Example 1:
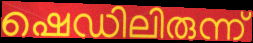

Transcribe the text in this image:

ഷെഡിലിരുന്ന്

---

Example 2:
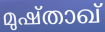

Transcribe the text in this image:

മുഷ്താഖ്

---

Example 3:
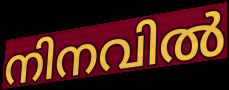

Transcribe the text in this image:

നിനവിൽ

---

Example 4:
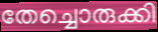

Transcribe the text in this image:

തേച്ചൊരുക്കി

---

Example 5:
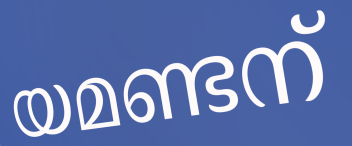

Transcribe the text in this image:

യമണ്ടന്